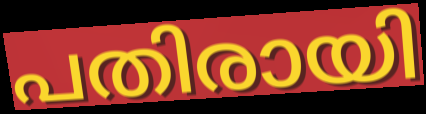
പതിരായി